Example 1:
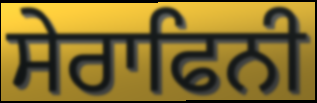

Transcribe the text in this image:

ਸੇਰਾਫਿਨੀ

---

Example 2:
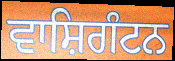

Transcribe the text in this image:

ਵਾਸ਼ਿਗੰਟਨ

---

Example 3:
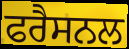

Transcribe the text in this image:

ਫਰੈਸਨਲ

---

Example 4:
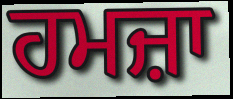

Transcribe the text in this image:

ਹਮਜ਼ਾ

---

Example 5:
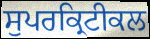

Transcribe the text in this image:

ਸੁਪਰਕ੍ਰਿਟੀਕਲ